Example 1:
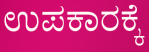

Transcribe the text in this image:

ಉಪಕಾರಕ್ಕೆ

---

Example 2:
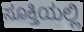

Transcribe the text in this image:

ಸೂಕ್ತಿಯಲ್ಲಿ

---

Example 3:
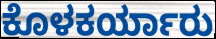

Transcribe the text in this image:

ಕೊಳಕರ್ಯಾರು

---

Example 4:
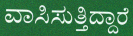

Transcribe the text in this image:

ವಾಸಿಸುತ್ತಿದ್ದಾರೆ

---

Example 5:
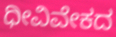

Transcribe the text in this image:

ಧೀವಿವೇಕದ